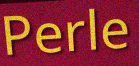
Perle